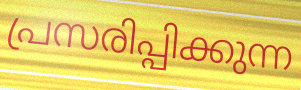
പ്രസരിപ്പിക്കുന്ന